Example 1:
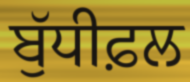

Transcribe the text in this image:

ਬੁੱਧੀਫ਼ਲ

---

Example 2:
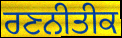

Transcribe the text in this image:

ਰਣਨੀਤੀਕ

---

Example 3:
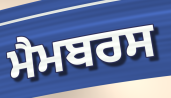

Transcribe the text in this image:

ਮੈਮਬਰਸ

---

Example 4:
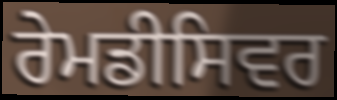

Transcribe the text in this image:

ਰੇਮਡੀਸਿਵਰ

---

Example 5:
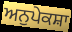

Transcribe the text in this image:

ਅਨੁਪੇਕਸ਼ਾ